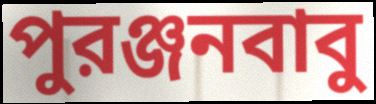
পুরঞ্জনবাবু